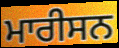
ਮਾਰੀਸਨ